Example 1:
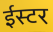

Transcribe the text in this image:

ईस्टर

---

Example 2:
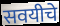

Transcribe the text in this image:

सवयीचे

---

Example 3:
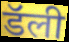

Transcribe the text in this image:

डॅली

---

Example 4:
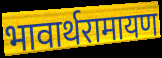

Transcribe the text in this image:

भावार्थरामायण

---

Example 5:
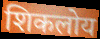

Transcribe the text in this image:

शिकलोय